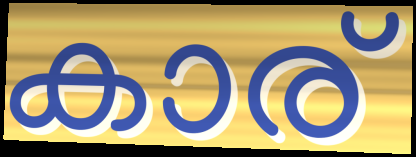
കാര്